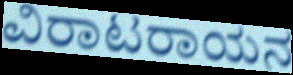
ವಿರಾಟರಾಯನ